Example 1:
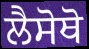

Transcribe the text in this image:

ਲੈਸੋਥੋ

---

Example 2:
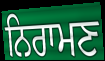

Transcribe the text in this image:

ਨਿਰਾਮਣ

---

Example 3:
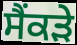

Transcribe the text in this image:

ਸੈਂਕੜੇ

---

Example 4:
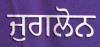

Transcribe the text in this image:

ਜੁਗਲੋਨ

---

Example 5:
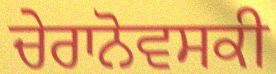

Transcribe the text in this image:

ਚੇਰਾਨੋਵਸਕੀ